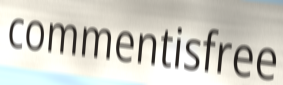
commentisfree